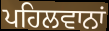
ਪਹਿਲਵਾਨਾਂ